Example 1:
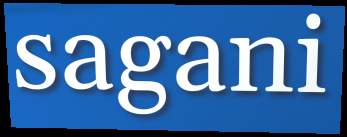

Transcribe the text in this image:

sagani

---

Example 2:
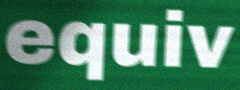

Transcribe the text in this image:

equiv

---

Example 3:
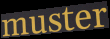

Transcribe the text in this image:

muster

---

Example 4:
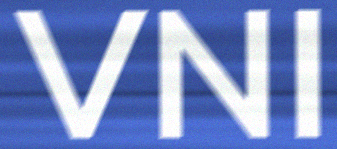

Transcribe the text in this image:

VNI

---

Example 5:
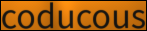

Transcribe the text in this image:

coducous